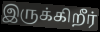
இருக்கிறீர்